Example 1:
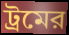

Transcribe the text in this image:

ট্রমের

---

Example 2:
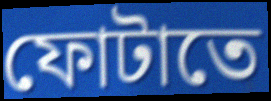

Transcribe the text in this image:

ফোটাতে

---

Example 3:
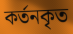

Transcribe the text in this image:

কর্তনকৃত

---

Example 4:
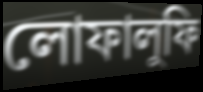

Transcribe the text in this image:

লোফালুফি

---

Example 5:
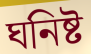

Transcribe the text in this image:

ঘনিষ্ট